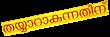
തയ്യാറാകുന്നതിന്